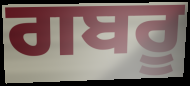
ਗਬਰੂ